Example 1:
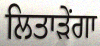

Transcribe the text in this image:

ਲਿਤਾੜੇਂਗਾ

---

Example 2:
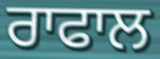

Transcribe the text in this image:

ਰਾਫਾਲ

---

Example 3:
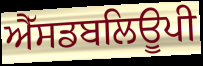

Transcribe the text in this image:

ਐੱਸਡਬਲਿਊਪੀ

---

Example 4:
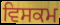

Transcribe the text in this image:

ਵਿਸਕਮ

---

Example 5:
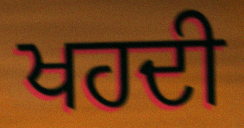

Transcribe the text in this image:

ਖਹਦੀ